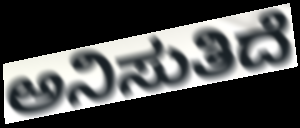
ಅನಿಸುತಿದೆ